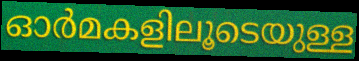
ഓർമകളിലൂടെയുള്ള